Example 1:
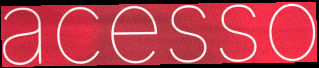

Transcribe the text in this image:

acesso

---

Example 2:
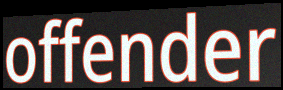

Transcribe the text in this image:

offender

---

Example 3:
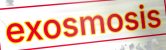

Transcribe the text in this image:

exosmosis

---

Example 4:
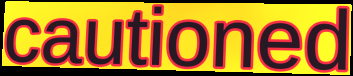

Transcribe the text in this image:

cautioned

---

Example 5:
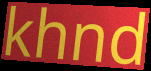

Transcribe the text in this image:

khnd